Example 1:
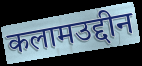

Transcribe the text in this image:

कलामउद्दीन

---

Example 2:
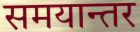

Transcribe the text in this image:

समयान्तर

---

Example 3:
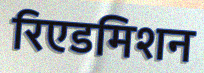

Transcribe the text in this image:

रिएडमिशन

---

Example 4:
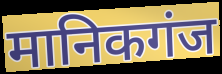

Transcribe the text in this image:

मानिकगंज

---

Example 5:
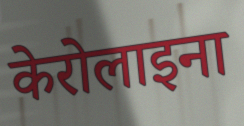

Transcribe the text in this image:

केरोलाइना